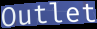
Outlet